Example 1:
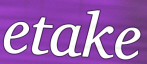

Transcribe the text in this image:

etake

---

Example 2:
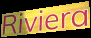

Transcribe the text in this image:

Riviera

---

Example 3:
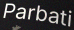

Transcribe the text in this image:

Parbati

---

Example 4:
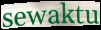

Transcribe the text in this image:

sewaktu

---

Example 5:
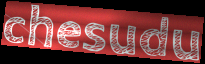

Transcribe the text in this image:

chesudu